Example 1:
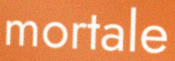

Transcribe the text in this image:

mortale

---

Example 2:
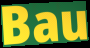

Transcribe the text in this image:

Bau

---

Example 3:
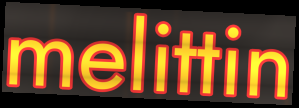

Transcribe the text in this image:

melittin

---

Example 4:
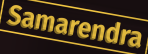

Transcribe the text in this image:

Samarendra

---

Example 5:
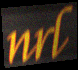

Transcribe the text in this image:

nrl